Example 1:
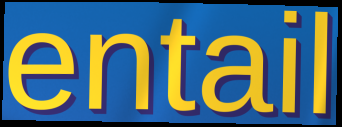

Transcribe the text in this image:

entail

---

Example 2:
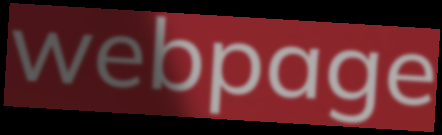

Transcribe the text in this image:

webpage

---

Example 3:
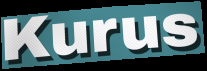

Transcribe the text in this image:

Kurus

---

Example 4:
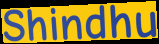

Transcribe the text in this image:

Shindhu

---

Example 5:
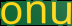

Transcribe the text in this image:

onu